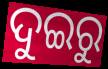
ଦୁଇରୁ